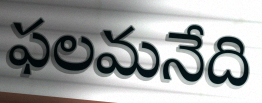
ఫలమనేది